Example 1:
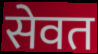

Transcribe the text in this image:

सेवत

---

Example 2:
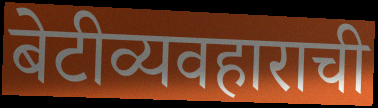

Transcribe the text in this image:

बेटीव्यवहाराची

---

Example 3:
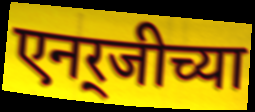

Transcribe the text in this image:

एनर्जीच्या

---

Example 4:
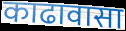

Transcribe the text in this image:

काढावासा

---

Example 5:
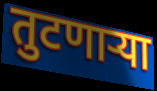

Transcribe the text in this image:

तुटणार्‍या